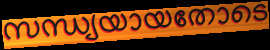
സന്ധ്യയായതോടെ